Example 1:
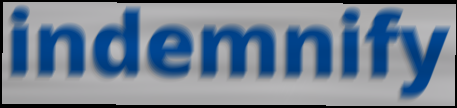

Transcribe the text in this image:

indemnify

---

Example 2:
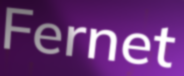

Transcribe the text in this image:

Fernet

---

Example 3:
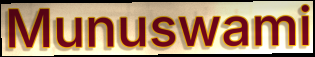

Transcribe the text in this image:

Munuswami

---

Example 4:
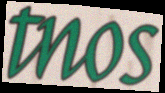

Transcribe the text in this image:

tnos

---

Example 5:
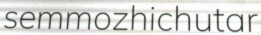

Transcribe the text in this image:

semmozhichutar